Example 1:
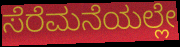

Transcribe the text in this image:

ಸೆರೆಮನೆಯಲ್ಲೇ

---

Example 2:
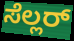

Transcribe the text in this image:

ಸೆಲ್ಲರ್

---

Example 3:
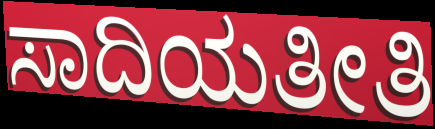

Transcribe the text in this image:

ಸಾದಿಯತೀತಿ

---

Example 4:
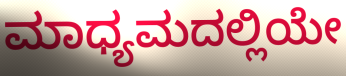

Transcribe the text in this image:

ಮಾಧ್ಯಮದಲ್ಲಿಯೇ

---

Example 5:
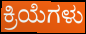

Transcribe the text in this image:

ಕ್ರಿಯೆಗಳು